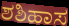
ಶಶಿಹಾಸ